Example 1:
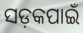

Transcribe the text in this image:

ସଡ଼କପାଇଁ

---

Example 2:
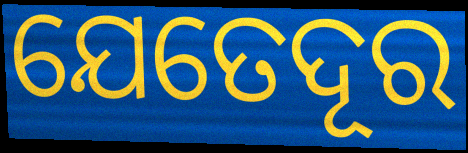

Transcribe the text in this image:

ଯେତେଦୂର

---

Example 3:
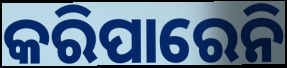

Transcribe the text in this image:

କରିପାରେନି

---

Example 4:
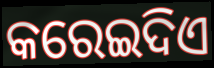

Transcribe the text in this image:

କରେଇଦିଏ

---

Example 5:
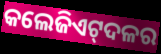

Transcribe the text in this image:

କଲେଜିଏଟ୍‍ଦଳର